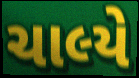
ચાલ્યે